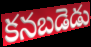
కనబడెడు